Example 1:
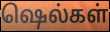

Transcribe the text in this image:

ஷெல்கள்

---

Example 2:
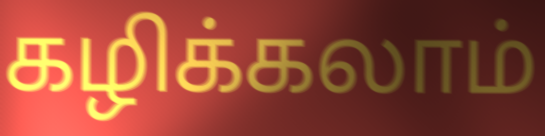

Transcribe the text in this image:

கழிக்கலாம்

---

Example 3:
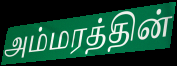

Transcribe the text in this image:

அம்மரத்தின்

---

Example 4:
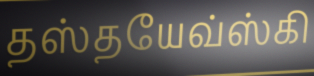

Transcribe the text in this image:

தஸ்தயேவ்ஸ்கி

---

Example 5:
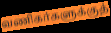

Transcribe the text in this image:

வணிகர்களுக்குத்